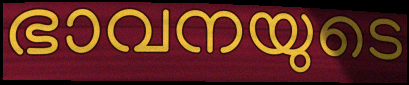
ഭാവനയുടെ